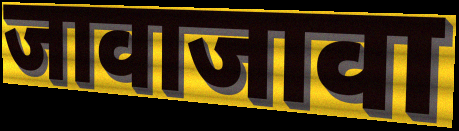
जावाजावा